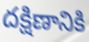
దక్షిణానికి